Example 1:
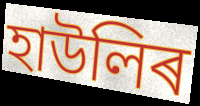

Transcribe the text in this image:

হাউলিৰ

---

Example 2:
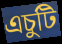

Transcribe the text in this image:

এচুটি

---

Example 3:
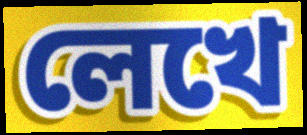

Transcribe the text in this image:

লেখে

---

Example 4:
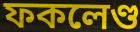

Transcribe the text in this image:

ফকলেণ্ড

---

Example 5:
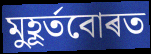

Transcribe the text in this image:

মুহূৰ্তবোৰত